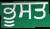
ਭੂਸਤ